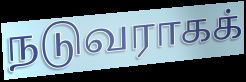
நடுவராகக்